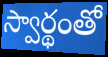
స్వార్థంతో